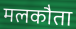
मलकौता